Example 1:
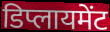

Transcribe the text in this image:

डिप्लायमेंट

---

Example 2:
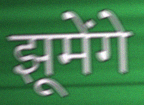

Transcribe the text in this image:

झूमेंगे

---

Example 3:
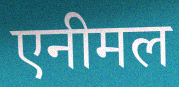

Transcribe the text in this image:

एनीमल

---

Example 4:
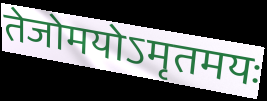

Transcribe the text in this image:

तेजोमयोऽमृतमयः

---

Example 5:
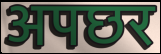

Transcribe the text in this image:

अपछर